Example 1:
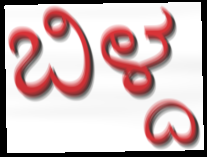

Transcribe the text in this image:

ಬಿಳ್ದ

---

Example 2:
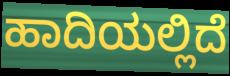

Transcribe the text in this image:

ಹಾದಿಯಲ್ಲಿದೆ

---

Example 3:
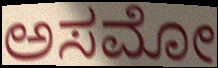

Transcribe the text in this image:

ಅಸಮೋ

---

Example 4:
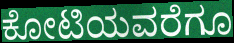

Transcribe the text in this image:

ಕೋಟಿಯವರೆಗೂ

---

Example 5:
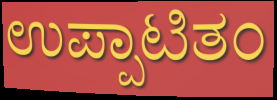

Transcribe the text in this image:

ಉಪ್ಪಾಟಿತಂ